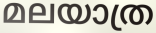
മലയാത്ര